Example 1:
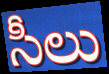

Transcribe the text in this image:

సీలు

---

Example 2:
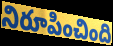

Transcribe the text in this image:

నిరూపించింది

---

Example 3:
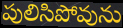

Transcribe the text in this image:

పులిసిపోవును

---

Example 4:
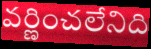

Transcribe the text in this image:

వర్ణించలేనిది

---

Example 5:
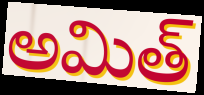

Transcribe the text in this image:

అమిత్